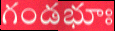
గండభూః